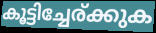
കൂട്ടിച്ചേര്ക്കുക